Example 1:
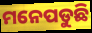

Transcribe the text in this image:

ମନେପଡୁଛି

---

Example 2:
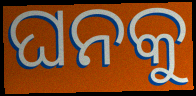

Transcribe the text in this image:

ଘନକୁ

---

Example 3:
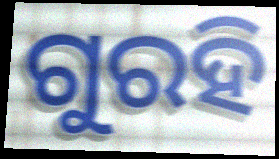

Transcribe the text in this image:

ଗୁରହି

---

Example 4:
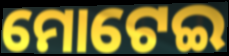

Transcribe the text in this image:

ମୋଟେଇ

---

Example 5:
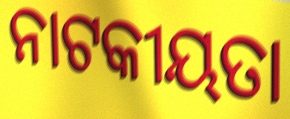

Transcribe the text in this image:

ନାଟକୀୟତା